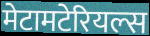
मेटामटेरियल्स